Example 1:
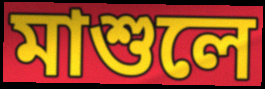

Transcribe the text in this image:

মাশুলে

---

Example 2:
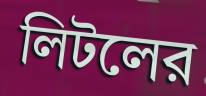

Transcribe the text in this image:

লিটলের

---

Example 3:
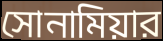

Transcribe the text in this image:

সোনামিয়ার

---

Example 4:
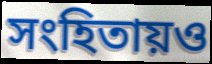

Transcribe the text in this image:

সংহিতায়ও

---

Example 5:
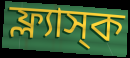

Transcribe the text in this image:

ফ্ল্যাস্‌ক